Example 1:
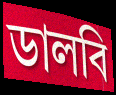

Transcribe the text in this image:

ডালবি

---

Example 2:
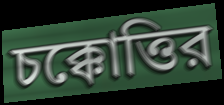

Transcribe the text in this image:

চক্কোত্তির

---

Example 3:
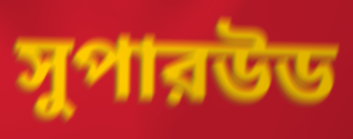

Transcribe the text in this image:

সুপারউড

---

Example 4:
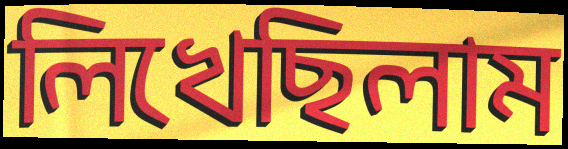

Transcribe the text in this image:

লিখেছিলাম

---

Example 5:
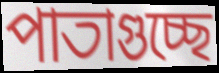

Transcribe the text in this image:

পাতাগুচ্ছে